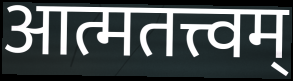
आत्मतत्त्वम्